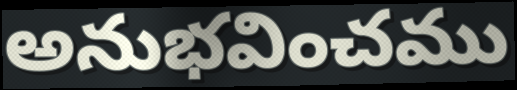
అనుభవించము